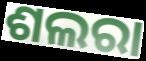
ଶଲରା